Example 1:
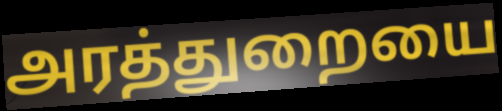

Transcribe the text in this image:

அரத்துறையை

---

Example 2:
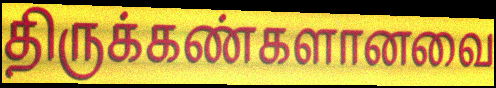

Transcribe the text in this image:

திருக்கண்களானவை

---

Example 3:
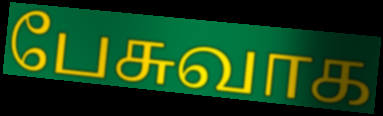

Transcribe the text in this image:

பேசுவாக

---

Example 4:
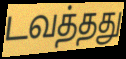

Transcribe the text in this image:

டவத்தது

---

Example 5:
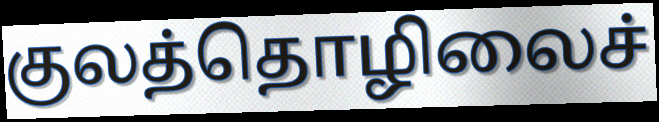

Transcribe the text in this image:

குலத்தொழிலைச்